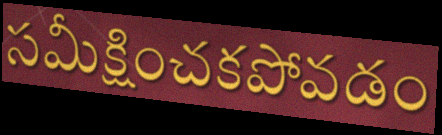
సమీక్షించకపోవడం